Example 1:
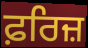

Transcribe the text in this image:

ਫ਼ਰਿਜ਼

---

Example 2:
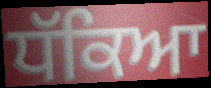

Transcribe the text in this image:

ਧੱਕਿਆ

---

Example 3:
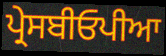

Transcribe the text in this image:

ਪ੍ਰੇਸਬੀਓਪੀਆ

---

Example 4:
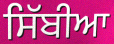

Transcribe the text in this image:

ਸਿੱਬੀਆ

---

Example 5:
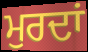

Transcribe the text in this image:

ਮੁਰਦਾਂ